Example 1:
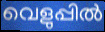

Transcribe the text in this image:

വെളുപ്പിൽ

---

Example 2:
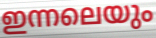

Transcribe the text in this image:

ഇന്നലെയും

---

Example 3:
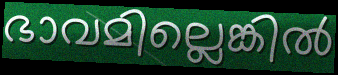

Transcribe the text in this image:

ഭാവമില്ലെങ്കിൽ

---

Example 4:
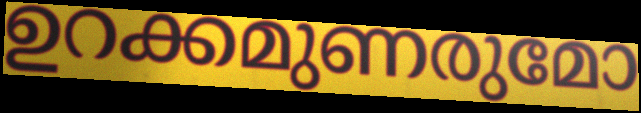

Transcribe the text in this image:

ഉറക്കമുണരുമോ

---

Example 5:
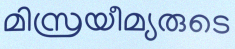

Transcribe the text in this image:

മിസ്രയീമ്യരുടെ